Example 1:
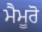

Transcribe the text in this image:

ਮੈਮੂਰੋ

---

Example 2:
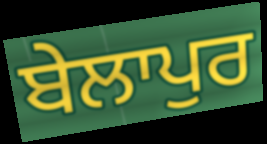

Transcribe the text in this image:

ਬੇਲਾਪੁਰ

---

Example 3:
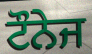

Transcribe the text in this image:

ਟੌਨੇਜ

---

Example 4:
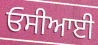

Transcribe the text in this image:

ਓਸੀਆਈ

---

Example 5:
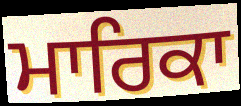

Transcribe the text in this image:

ਮਾਰਿਕਾ